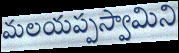
మలయప్పస్వామిని